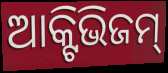
ଆକ୍ଟିଭିଜମ୍